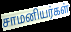
சாமனியர்கள்